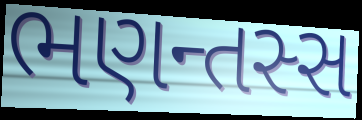
ભણન્તસ્સ